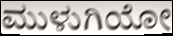
ಮುಳುಗಿಯೋ